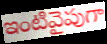
ఇంటివైపుగా